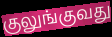
குலுங்குவது